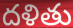
దళితు